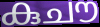
കുചൗ